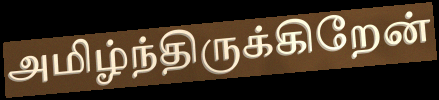
அமிழ்ந்திருக்கிறேன்